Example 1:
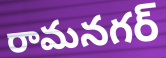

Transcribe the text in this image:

రామనగర్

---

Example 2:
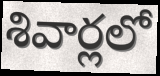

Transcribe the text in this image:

శివార్లలో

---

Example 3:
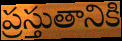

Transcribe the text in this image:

ప్రస్తుతానికి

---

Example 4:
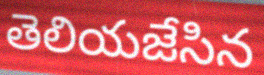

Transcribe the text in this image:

తెలియజేసిన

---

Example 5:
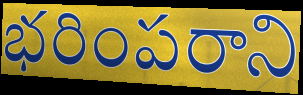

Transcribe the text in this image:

భరింపరాని